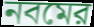
নবমের